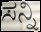
ಸನ್ನಿ